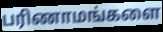
பரிணாமங்களை